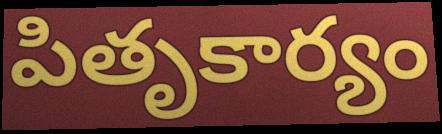
పితృకార్యం